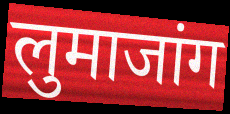
लुमाजांग